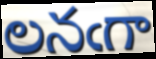
లనఁగా